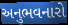
અનુભવનારો